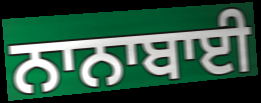
ਨਾਨਾਬਾਈ